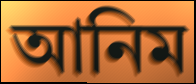
আনিম